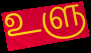
உளு